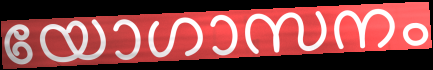
യോഗാസനം